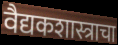
वैद्यकशास्त्राचा